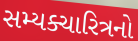
સમ્યક્ચારિત્રનો